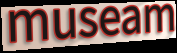
museam